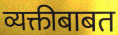
व्यक्तीबाबत